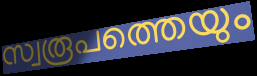
സ്വരൂപത്തെയും